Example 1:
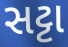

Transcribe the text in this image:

સટ્ટા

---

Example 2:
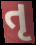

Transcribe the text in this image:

તૃ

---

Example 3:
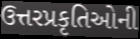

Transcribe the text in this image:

ઉત્તરપ્રકૃતિઓની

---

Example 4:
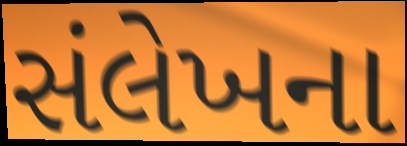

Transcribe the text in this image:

સંલેખના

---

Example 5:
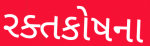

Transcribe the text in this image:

રક્તકોષના